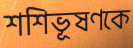
শশিভূষণকে